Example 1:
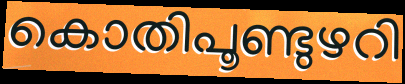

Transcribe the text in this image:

കൊതിപൂണ്ടുഴറി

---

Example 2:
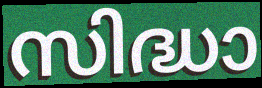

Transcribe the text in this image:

സിദ്ധാ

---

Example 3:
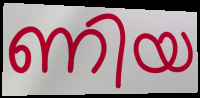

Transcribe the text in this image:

ണിയ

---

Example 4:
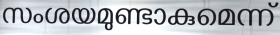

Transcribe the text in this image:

സംശയമുണ്ടാകുമെന്ന്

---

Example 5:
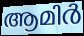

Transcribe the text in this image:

ആമിർ